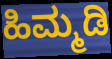
ಹಿಮ್ಮಡಿ